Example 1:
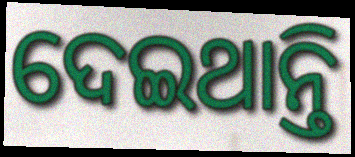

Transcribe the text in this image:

ଦେଇଥାନ୍ତି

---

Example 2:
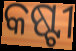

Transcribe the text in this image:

କଷ୍ଟୀ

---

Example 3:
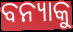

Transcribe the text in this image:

ବନ୍ୟାକୁ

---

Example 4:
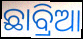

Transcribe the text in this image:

ଛାବ୍ରିଆ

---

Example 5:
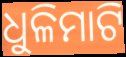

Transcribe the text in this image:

ଧୁଳିମାଟି